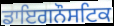
ਡਾਇਗਨੌਸਟਿਕ